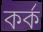
কৰ্ক